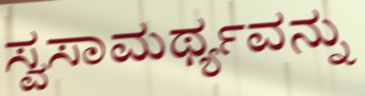
ಸ್ವಸಾಮರ್ಥ್ಯವನ್ನು